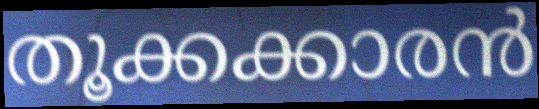
തൂക്കക്കാരൻ